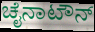
ಚೈನಾಟೌನ್